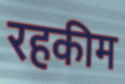
रहकीम